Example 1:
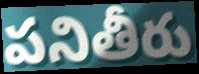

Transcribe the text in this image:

పనితీరు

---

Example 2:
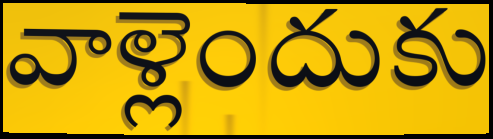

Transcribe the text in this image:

వాళ్లెందుకు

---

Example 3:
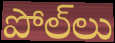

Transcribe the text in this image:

పోల్‌లు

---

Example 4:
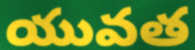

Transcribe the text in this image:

యువత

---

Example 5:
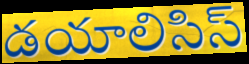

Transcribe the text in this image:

డయాలిసిస్